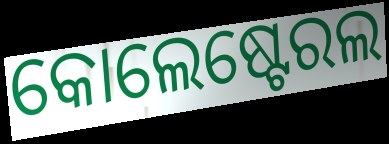
କୋଲେଷ୍ଟେରଲ